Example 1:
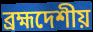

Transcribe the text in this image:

ব্রহ্মদেশীয়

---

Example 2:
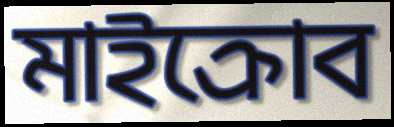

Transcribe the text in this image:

মাইক্রোব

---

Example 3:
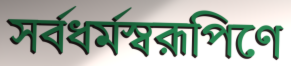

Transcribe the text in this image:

সর্বধর্মস্বরূপিণে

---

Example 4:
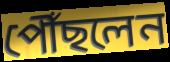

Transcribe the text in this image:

পৌঁছলেন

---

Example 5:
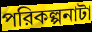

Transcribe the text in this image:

পরিকল্পনাটা